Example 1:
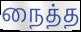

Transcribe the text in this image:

நைத்த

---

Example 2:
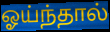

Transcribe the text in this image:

ஓய்ந்தால்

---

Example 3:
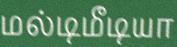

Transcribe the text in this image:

மல்டிமீடியா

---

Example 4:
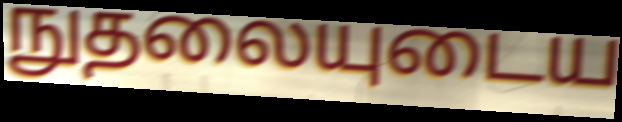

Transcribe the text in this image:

நுதலையுடைய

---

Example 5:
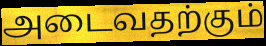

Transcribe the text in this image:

அடைவதற்கும்